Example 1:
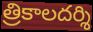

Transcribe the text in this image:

త్రికాలదర్శి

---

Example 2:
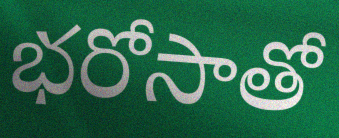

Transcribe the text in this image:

భరోసాతో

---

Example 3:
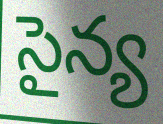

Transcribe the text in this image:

సైన్య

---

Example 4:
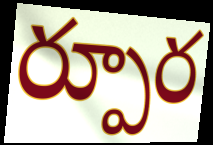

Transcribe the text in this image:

ర్పూర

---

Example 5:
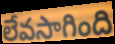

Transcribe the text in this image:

లేవసాగింది